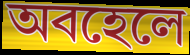
অবহেলে